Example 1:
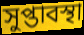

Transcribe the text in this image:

সুপ্তাবস্থা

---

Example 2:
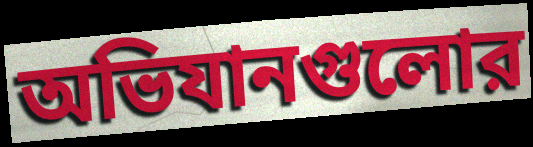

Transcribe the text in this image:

অভিযানগুলোর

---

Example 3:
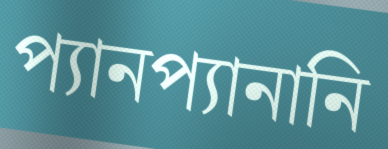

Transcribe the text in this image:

প্যানপ্যানানি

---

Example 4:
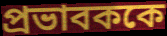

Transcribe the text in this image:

প্রভাবককে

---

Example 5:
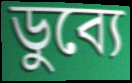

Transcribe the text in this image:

ডুব্যে